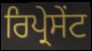
ਰਿਪ੍ਰੇਸੇੰਟ